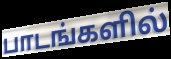
பாடங்களில்